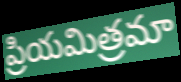
ప్రియమిత్రమా